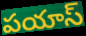
పయాస్